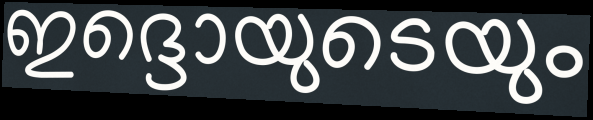
ഇദ്ദൊയുടെയും